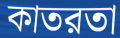
কাতরতা